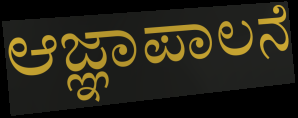
ಆಜ್ಞಾಪಾಲನೆ